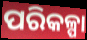
ପରିକଳ୍ପା